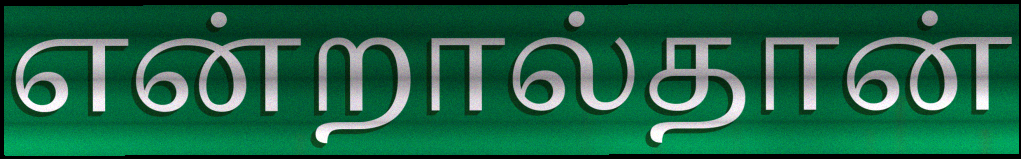
என்றால்தான்